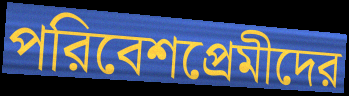
পরিবেশপ্রেমীদের